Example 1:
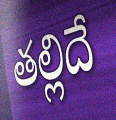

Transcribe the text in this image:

తల్లిదే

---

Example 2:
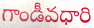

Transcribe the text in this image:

గాండీవధారి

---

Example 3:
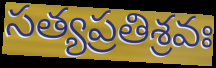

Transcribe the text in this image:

సత్యప్రతిశ్రవః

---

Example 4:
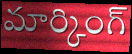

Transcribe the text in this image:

మార్కింగ్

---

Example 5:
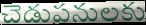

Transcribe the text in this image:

చెడుపనులకు